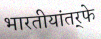
भारतीयांतर्फे